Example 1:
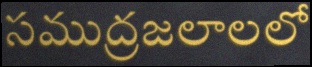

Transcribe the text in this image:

సముద్రజలాలలో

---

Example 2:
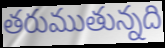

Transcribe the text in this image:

తరుముతున్నది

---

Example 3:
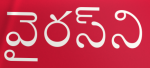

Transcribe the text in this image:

వైరస్‌ని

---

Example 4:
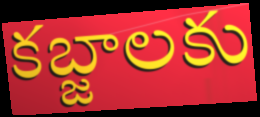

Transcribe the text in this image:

కబ్జాలకు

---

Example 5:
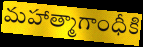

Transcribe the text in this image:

మహాత్మాగాంధీకి